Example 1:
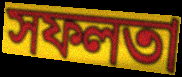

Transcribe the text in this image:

সফলতা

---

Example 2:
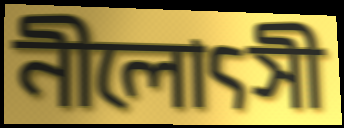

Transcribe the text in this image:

নীলোৎসী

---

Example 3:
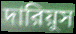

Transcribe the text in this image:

দারিয়ুস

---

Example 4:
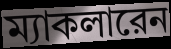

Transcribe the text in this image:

ম্যাকলারেন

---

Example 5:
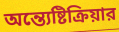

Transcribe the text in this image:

অন্ত্যেষ্টিক্রিয়ার